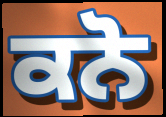
ਕਨੋ